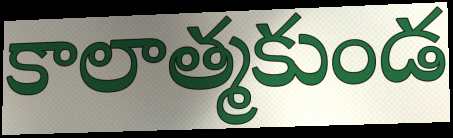
కాలాత్మకుండ